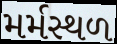
મર્મસ્થળ